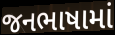
જનભાષામાં